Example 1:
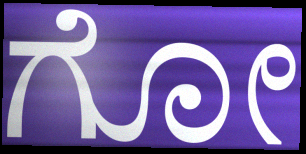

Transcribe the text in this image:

ಗೋ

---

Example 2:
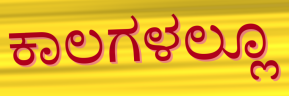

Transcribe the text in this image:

ಕಾಲಗಳಲ್ಲೂ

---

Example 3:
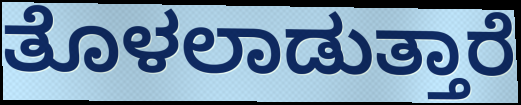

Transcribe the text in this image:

ತೊಳಲಾಡುತ್ತಾರೆ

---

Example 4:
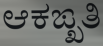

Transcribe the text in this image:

ಆಕಙ್ಖತಿ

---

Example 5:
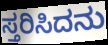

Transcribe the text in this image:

ಸ್ತರಿಸಿದನು